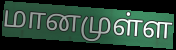
மானமுள்ள